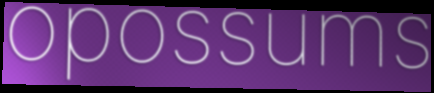
opossums